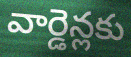
వార్డెన్లకు